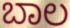
ಬಾಲ